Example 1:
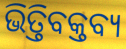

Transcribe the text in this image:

ଭିତ୍ତିବକ୍ତବ୍ୟ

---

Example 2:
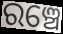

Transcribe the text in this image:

ରଞ୍ଚେ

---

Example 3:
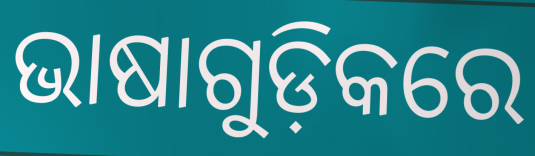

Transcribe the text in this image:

ଭାଷାଗୁଡ଼ିକରେ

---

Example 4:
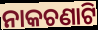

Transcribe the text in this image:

ନାକଚଣାଟି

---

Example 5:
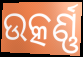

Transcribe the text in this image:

ଉତ୍କର୍ଣ୍ଣ